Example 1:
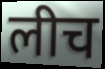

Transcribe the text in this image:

लीच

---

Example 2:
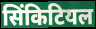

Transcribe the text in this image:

सिंकिटियल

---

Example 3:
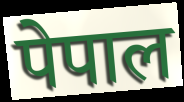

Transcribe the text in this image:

पेपाल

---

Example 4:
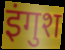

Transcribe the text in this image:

इंगुश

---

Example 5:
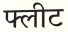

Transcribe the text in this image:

फ्लीट